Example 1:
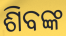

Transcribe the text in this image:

ଶିବଙ୍କ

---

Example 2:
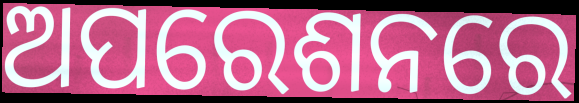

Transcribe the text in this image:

ଅପରେଶନରେ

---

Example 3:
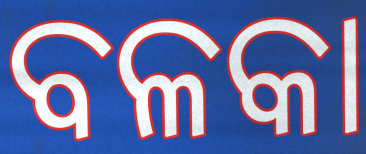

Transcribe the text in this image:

ବଳକା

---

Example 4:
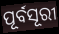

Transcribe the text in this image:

ପୂର୍ବସୂରୀ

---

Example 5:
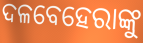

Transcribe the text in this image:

ଦଳବେହେରାଙ୍କୁ